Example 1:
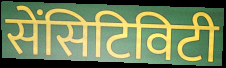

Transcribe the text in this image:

सेंसिटिविटी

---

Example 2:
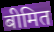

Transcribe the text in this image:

बीमित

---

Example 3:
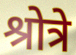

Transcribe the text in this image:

श्रोत्रे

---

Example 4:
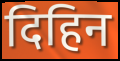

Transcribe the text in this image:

दिहिन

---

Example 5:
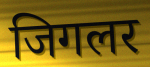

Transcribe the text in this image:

जिगलर